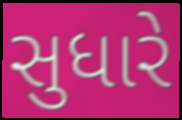
સુધારે